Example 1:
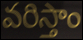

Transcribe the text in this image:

వరిస్తాం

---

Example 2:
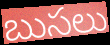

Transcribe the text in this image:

బుసలు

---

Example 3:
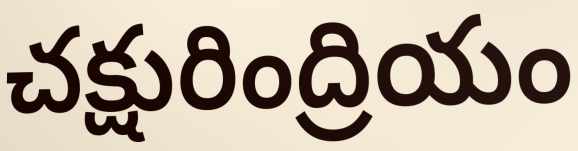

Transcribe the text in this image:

చక్షురింద్రియం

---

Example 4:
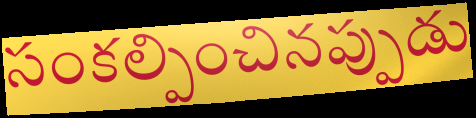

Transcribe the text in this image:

సంకల్పించినప్పుడు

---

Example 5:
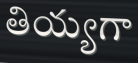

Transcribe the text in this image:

తియ్యగా